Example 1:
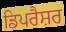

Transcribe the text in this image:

ਡਿਪਰੈਸ਼ਰ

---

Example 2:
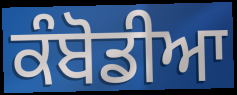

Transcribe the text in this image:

ਕੰਬੋਡੀਆ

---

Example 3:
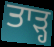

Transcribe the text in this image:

ਤਾੜ੍ਹ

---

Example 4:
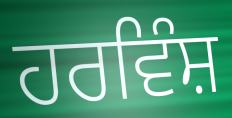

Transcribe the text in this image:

ਹਰਵਿੰਸ਼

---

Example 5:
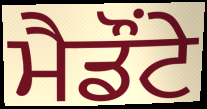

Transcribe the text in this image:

ਮੈਡੌਂਟੇ